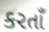
કરતાઁ